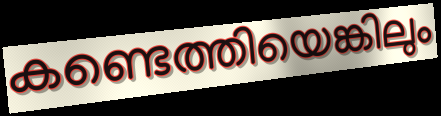
കണ്ടെത്തിയെങ്കിലും